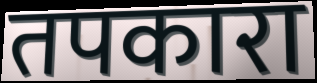
तपकारा